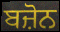
ਬਜ਼ੋਨ